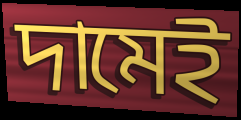
দামেই